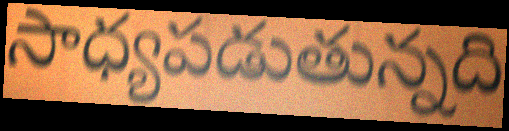
సాధ్యపడుతున్నది